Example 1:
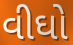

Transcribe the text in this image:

વીઘો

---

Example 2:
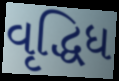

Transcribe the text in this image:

વૃદ્ધિધ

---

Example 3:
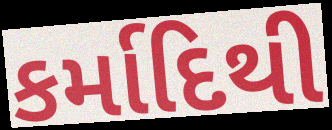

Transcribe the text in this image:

કર્માદિથી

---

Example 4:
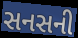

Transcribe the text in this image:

સનસની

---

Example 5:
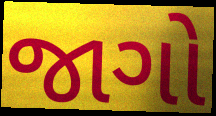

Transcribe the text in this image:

જાગો